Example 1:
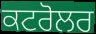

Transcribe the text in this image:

ਕਟਰੋਲਰ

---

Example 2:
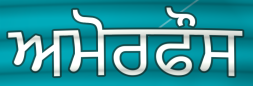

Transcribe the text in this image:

ਅਮੋਰਫੌਸ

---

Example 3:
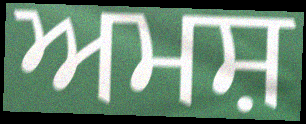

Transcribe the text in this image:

ਅਮਸ਼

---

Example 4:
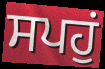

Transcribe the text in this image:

ਸਪਹੁਂ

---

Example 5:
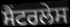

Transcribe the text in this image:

ਸੈਂਟਰਲੇਸ